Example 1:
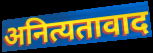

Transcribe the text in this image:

अनित्यतावाद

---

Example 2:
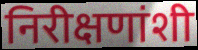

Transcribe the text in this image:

निरीक्षणांशी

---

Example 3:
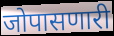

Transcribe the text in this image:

जोपासणारी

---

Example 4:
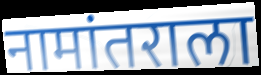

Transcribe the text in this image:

नामांतराला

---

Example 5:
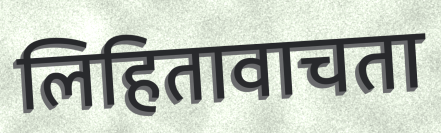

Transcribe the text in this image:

लिहितावाचता